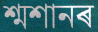
শ্মশানৰ